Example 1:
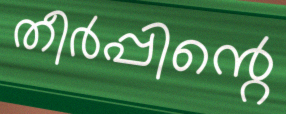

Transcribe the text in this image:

തീർപ്പിന്റെ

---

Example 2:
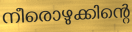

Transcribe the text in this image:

നീരൊഴുക്കിന്റെ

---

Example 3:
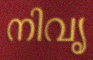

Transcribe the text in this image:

നിവൃ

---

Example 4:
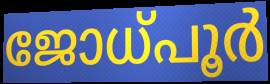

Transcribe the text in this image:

ജോധ്പൂർ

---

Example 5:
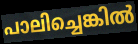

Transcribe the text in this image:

പാലിച്ചെങ്കിൽ